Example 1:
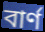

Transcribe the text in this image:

বাৰ্ণ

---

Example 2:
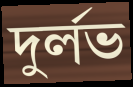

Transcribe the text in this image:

দুৰ্লভ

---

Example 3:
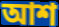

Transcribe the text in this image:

আশ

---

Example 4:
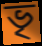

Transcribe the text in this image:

ভৃ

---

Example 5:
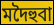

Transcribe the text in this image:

মদৈহুবা